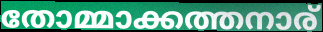
തോമ്മാക്കത്തനാര്